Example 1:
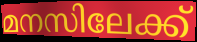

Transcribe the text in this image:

മനസിലേക്ക്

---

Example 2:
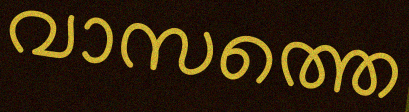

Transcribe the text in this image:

വാസത്തെ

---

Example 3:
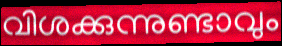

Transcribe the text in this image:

വിശക്കുന്നുണ്ടാവും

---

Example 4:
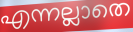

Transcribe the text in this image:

എന്നല്ലാതെ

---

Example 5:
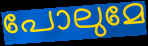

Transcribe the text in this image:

പോലുമേ